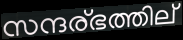
സന്ദര്ഭത്തില്